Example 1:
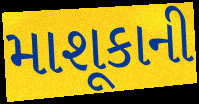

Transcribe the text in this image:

માશૂકાની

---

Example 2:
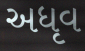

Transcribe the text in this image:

અધૃવ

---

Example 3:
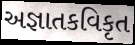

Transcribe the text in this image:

અજ્ઞાતકવિકૃત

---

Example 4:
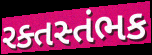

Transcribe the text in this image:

રક્તસ્તંભક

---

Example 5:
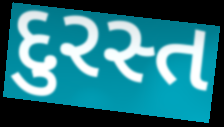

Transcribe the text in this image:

દુરસ્ત